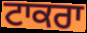
ਟਾਕਰਾ